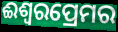
ଈଶ୍ୱରପ୍ରେମର